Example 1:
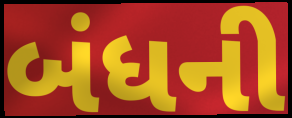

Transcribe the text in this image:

બંધની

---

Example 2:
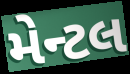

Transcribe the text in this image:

મેન્ટલ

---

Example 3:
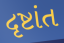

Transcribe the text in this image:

દૃષ્ટાંત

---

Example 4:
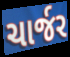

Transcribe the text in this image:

ચાર્જર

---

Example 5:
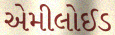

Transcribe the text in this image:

એમીલોઈડ